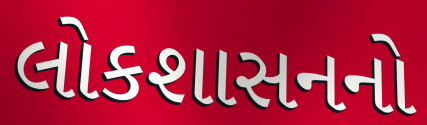
લોકશાસનનો